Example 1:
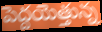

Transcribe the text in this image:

పెద్దయెత్తున్న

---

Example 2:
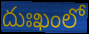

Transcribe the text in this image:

దుఃఖంలో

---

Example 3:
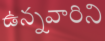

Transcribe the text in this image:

ఉన్నవారిని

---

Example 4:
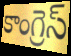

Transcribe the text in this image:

కాంగ్రెస్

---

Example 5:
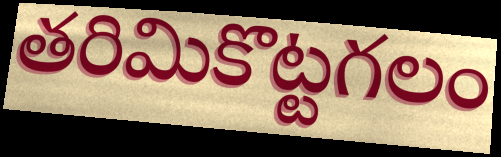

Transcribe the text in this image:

తరిమికొట్టగలం